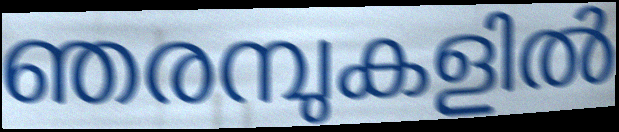
ഞരമ്പുകളിൽ